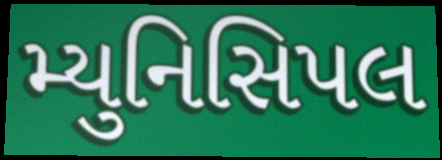
મ્યુનિસિપલ